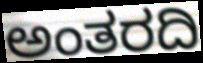
ಅಂತರದಿ